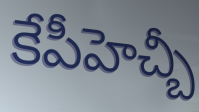
కేపీహెచ్బీ